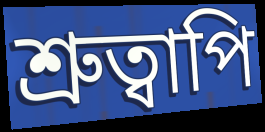
শ্রুত্বাপি